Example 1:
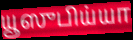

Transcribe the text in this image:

யூஸுபிய்யா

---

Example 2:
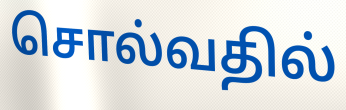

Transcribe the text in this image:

சொல்வதில்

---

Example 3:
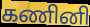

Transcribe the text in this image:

கணினி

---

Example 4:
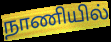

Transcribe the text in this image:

நாணியில்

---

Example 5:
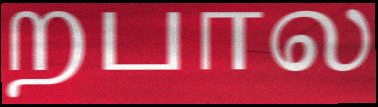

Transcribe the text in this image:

றபால